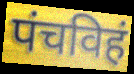
पंचविहं